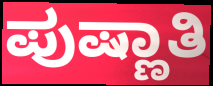
ಪುಷ್ಣಾತಿ